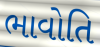
ભાવોતિ